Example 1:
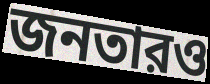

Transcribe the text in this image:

জনতারও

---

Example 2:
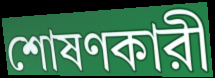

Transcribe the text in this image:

শোষণকারী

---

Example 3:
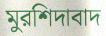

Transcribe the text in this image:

মুরশিদাবাদ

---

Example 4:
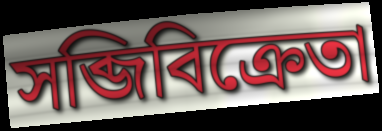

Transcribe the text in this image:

সব্জিবিক্রেতা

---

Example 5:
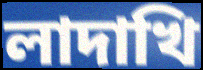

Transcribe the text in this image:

লাদাখি